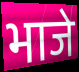
भाजे